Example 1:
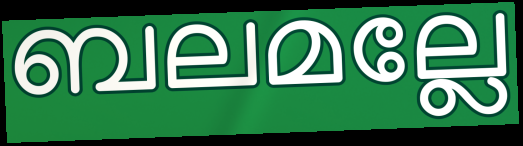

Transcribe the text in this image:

ബലമല്ലേ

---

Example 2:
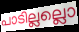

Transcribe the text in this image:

പാടില്ലല്ലൊ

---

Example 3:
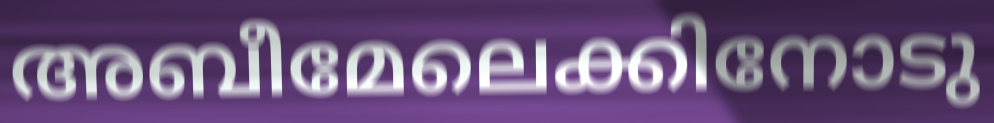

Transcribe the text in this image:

അബീമേലെക്കിനോടു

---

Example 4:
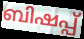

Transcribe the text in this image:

ബിഷപ്പ്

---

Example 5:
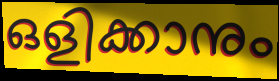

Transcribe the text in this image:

ഒളിക്കാനും